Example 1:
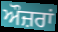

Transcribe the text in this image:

ਔਜ਼ਰਾਂ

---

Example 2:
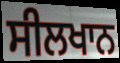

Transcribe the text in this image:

ਸੀਲਖਾਨ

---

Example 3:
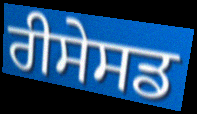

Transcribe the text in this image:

ਰੀਸੇਸਡ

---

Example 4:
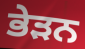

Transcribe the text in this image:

ਭੇੜਨ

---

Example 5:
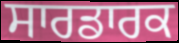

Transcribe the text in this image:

ਸਾਰਡਾਰਕ